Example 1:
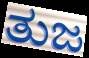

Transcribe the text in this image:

ತುಜ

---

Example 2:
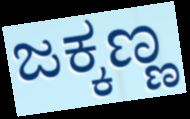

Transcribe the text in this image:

ಜಕ್ಕಣ್ಣ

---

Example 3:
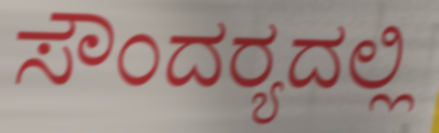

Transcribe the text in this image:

ಸೌಂದರ‍್ಯದಲ್ಲಿ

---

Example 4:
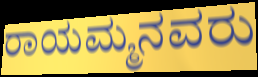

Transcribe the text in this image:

ರಾಯಮ್ಮನವರು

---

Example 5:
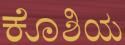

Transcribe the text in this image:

ಕೊಶಿಯ